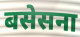
बसेसना